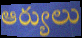
ఆర్యులు